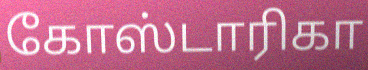
கோஸ்டாரிகா